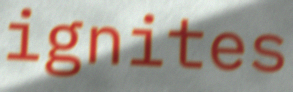
ignites